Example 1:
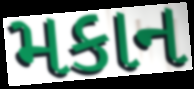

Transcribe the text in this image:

મકાન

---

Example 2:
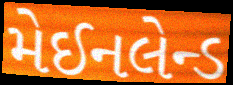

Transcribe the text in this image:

મેઈનલેન્ડ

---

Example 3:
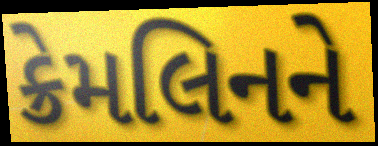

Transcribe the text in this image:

ક્રેમલિનને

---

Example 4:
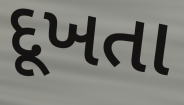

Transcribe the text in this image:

દૂખતા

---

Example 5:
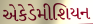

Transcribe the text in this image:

એકેડેમીશિયન